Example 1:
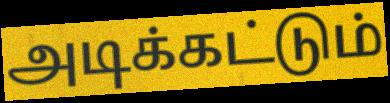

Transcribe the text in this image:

அடிக்கட்டும்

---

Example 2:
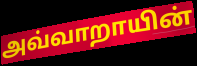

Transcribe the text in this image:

அவ்வாறாயின்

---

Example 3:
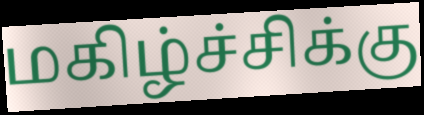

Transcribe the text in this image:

மகிழ்ச்சிக்கு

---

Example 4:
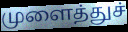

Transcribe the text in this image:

முளைத்துச்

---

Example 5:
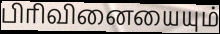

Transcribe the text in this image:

பிரிவினையையும்